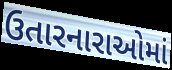
ઉતારનારાઓમાં